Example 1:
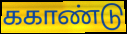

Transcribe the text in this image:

ககாண்டு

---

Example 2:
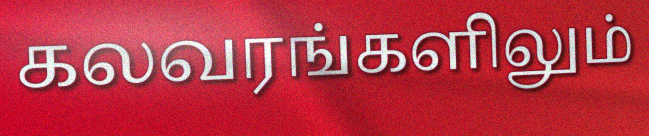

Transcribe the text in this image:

கலவரங்களிலும்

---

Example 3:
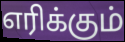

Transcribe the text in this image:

எரிக்கும்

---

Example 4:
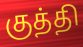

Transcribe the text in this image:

குத்தி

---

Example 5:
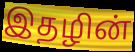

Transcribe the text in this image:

இதழின்